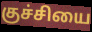
குச்சியை